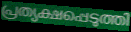
പ്രത്യക്ഷപ്പെടുത്തി